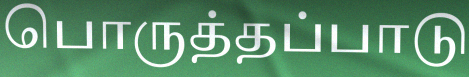
பொருத்தப்பாடு